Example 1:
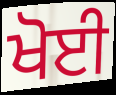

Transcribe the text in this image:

ਖੋਈ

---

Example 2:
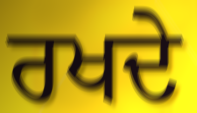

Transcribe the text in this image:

ਰਖਦੇ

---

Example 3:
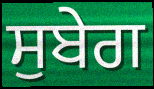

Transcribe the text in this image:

ਸੁਬੇਗ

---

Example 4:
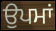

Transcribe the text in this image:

ਉਪਮਾਂ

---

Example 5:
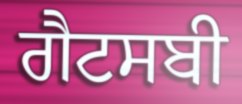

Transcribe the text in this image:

ਗੈਟਸਬੀ